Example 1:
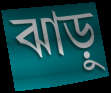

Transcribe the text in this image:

ঝাড়ু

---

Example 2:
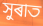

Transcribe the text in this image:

সুৰাত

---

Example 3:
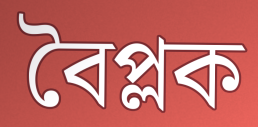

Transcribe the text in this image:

বৈপ্লক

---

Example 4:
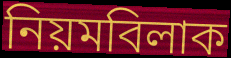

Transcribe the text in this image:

নিয়মবিলাক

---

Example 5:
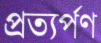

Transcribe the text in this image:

প্ৰত্যৰ্পণ